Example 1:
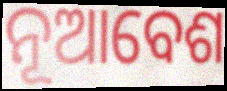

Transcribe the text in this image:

ନୂଆବେଶ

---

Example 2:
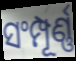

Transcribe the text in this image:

ସଂମ୍ପୂର୍ଣ୍ଣ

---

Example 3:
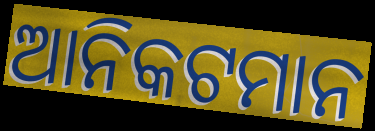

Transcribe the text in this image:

ଆନିକଟମାନ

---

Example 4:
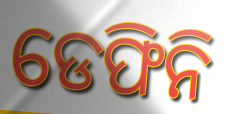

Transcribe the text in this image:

ଡେଫିନି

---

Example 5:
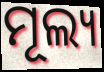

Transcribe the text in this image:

ମୂଲ୍ୟ